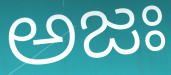
అజః